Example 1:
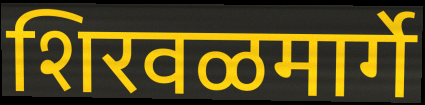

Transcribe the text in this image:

शिरवळमार्गे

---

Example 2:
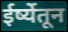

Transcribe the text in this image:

ईर्ष्येतून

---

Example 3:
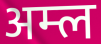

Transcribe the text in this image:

अम्ल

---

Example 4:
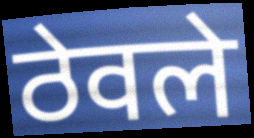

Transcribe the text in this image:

ठेवले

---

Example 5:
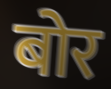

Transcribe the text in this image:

बोर